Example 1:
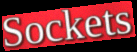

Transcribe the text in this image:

Sockets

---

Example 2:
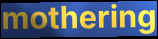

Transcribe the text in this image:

mothering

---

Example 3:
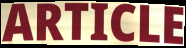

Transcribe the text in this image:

ARTICLE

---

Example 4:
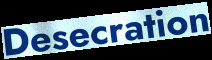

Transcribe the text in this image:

Desecration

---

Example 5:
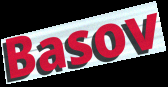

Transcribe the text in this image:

Basov